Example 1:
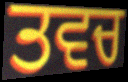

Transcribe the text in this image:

ਤਵਚ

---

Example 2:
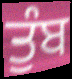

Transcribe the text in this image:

ਤੁੰਬ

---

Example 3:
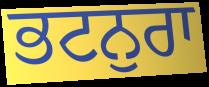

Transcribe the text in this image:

ਭਟਨੁਰਾ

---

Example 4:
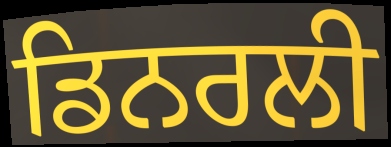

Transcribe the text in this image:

ਡਿਨਰਲੀ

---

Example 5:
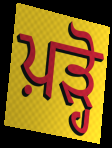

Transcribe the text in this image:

ਪ਼ੜ੍ਹੋ